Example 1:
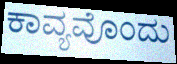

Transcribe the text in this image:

ಕಾವ್ಯವೊಂದು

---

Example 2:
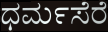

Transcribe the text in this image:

ಧರ್ಮಸೆರೆ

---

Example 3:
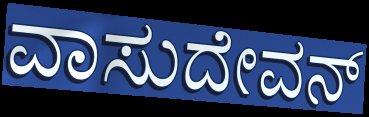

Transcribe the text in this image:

ವಾಸುದೇವನ್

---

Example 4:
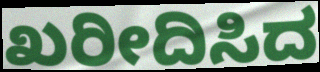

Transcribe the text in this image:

ಖರೀದಿಸಿದ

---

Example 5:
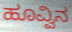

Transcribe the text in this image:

ಹೂವ್ವಿನ